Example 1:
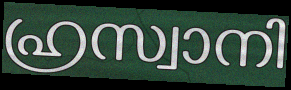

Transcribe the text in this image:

ഹ്രസ്വാനി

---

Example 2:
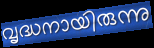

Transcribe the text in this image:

വൃദ്ധനായിരുന്നു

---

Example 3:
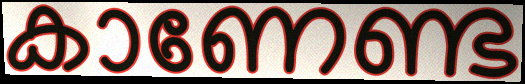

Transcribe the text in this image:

കാണേണ്ട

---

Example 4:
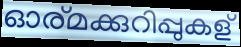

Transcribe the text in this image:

ഓര്മക്കുറിപ്പുകള്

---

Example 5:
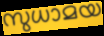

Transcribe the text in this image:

സുധാമയ